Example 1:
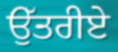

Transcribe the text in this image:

ਉੱਤਰੀਏ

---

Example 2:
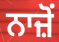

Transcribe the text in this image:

ਨਾਜ਼ੋਂ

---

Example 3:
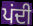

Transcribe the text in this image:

ਪਂਦੀ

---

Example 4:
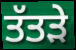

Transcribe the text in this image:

ਤੱਤੜੇ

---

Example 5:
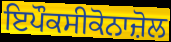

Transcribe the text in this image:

ਇਪੌਕਸੀਕੋਨਾਜ਼ੋਲ